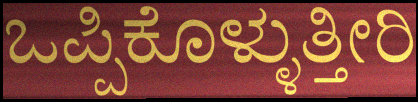
ಒಪ್ಪಿಕೊಳ್ಳುತ್ತೀರಿ